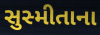
સુસ્મીતાના